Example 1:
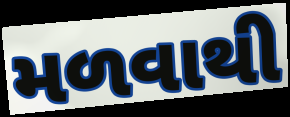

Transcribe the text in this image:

મળવાથી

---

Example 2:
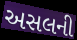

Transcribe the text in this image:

અસલની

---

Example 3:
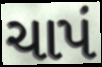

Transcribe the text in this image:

ચાપં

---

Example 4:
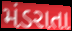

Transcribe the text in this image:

મંડરાતા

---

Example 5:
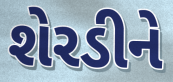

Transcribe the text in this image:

શેરડીને